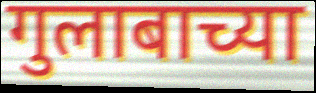
गुलाबाच्या